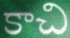
కాచి